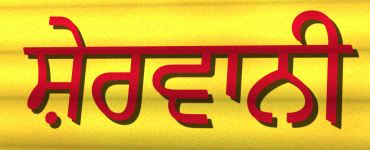
ਸ਼ੇਰਵਾਨੀ